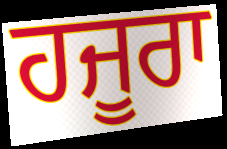
ਹਜੂਰਾ